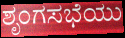
ಶೃಂಗಸಭೆಯು